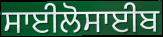
ਸਾਈਲੋਸਾਈਬ